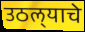
उठल्याचे